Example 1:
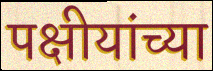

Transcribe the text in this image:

पक्षीयांच्या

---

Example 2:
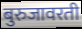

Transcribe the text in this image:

बुरुजावरती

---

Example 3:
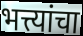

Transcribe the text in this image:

भत्त्यांचा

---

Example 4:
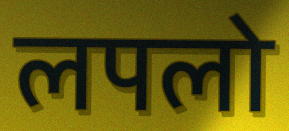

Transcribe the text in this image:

लपलो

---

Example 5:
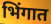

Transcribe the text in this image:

भिंगात